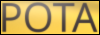
POTA